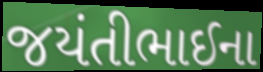
જયંતીભાઈના